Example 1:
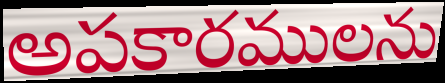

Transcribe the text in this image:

అపకారములను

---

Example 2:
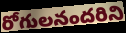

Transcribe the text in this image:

రోగులనందరిని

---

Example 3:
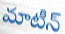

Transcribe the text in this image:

మాటీన్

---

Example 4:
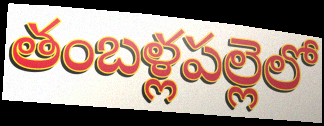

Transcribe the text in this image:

తంబళ్లపల్లెలో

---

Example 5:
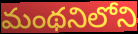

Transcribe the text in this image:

మంథనిలోని